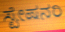
ಸ್ಟೇಷನರಿ